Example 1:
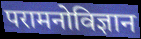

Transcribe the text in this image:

परामनोविज्ञान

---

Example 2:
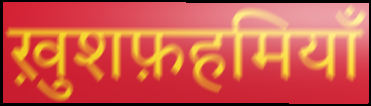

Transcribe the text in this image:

ख़ुशफ़हमियाँ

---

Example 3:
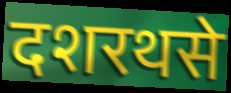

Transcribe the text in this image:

दशरथसे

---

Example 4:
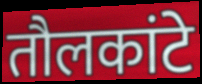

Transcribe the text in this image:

तौलकांटे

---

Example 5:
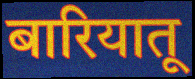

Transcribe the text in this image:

बारियातू